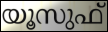
യൂസുഫ്